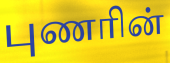
புணரின்